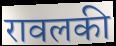
रावलकी